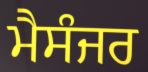
ਮੈਸੰਜਰ